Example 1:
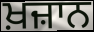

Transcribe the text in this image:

ਖ਼ਜ਼ਾਨ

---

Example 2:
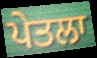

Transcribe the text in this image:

ਪੇਤਲਾ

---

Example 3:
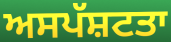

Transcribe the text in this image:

ਅਸਪੱਸ਼ਟਤਾ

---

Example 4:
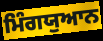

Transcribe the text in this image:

ਮਿੰਗਯੁਆਨ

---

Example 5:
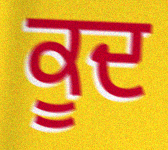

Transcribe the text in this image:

ਕੂਦ